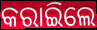
କରାଇିଲେ